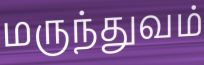
மருந்துவம்